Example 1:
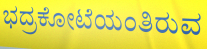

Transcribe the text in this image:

ಭದ್ರಕೋಟೆಯಂತಿರುವ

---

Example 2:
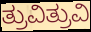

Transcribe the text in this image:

ತ್ರುವಿತ್ರುವಿ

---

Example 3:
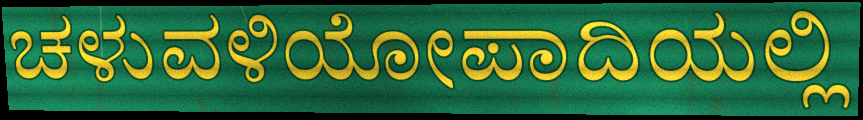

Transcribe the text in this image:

ಚಳುವಳಿಯೋಪಾದಿಯಲ್ಲಿ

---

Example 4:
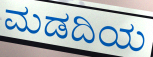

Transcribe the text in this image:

ಮಡದಿಯ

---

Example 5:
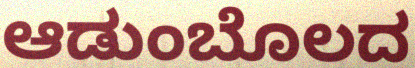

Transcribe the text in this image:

ಆಡುಂಬೊಲದ